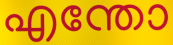
എന്തോ